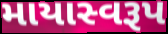
માયાસ્વરૂપ